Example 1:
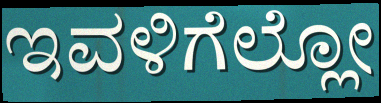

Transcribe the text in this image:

ಇವಳಿಗೆಲ್ಲೋ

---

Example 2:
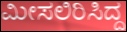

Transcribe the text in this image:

ಮೀಸಲಿರಿಸಿದ್ದ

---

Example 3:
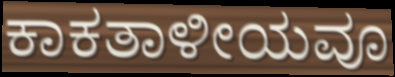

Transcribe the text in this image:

ಕಾಕತಾಳೀಯವೂ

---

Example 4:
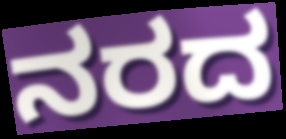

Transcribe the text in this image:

ನರದ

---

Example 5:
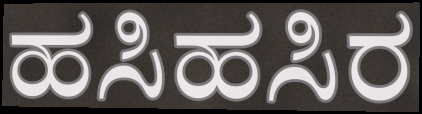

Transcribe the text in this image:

ಹಸಿಹಸಿರ